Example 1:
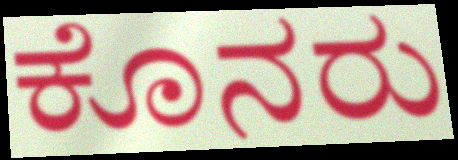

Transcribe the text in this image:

ಕೊನರು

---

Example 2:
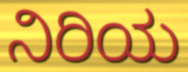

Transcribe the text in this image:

ನಿರಿಯ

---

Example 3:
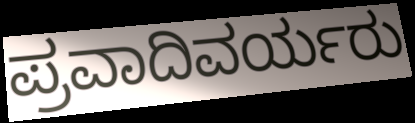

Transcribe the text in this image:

ಪ್ರವಾದಿವರ್ಯರು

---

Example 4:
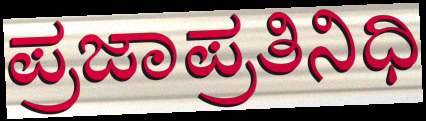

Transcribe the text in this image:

ಪ್ರಜಾಪ್ರತಿನಿಧಿ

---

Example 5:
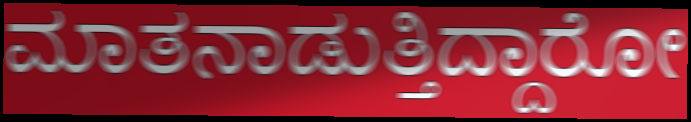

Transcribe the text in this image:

ಮಾತನಾಡುತ್ತಿದ್ದಾರೋ